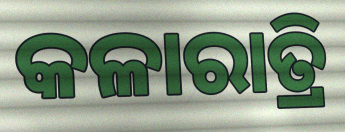
କଳାରାତ୍ରି